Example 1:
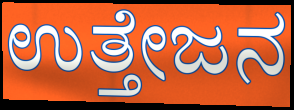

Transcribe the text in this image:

ಉತ್ತೇಜನ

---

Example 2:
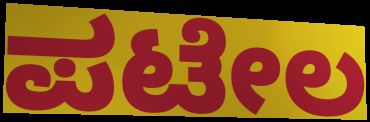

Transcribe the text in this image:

ಪಟೇಲ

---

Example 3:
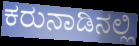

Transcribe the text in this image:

ಕರುನಾಡಿನಲ್ಲಿ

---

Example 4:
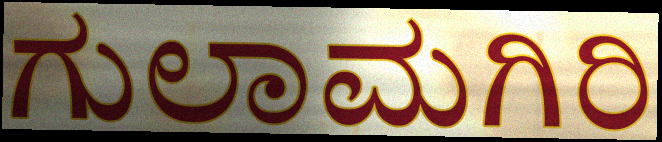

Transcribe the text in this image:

ಗುಲಾಮಗಿರಿ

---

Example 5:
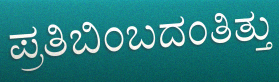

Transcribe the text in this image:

ಪ್ರತಿಬಿಂಬದಂತಿತ್ತು